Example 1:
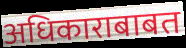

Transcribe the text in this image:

अधिकाराबाबत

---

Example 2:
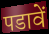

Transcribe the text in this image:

पडावें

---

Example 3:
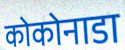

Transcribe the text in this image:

कोकोनाडा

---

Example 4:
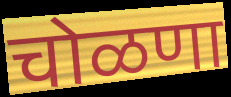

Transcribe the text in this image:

चोळणा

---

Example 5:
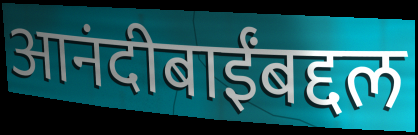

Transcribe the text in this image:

आनंदीबाईंबद्दल